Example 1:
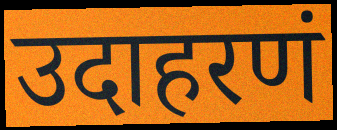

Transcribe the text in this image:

उदाहरणं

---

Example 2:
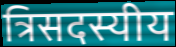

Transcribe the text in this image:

त्रिसदस्यीय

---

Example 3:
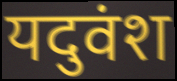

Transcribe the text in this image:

यदुवंश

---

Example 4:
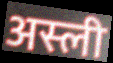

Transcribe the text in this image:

अस्ली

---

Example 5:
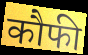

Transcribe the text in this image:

कौफी